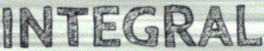
INTEGRAL